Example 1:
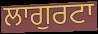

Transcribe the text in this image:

ਲਾਗੁਰਟਾ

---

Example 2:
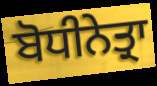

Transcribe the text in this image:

ਬੋਧੀਨੇਤ੍ਰਾ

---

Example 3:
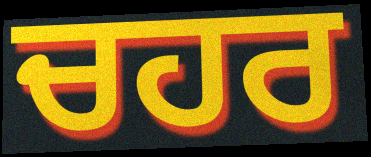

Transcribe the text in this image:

ਚਹਰ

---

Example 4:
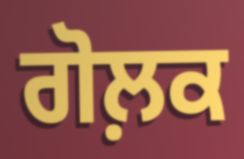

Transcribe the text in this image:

ਗੋਲ਼ਕ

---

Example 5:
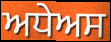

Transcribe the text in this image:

ਅਧੇਅਸ